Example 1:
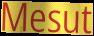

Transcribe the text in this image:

Mesut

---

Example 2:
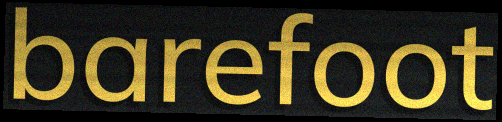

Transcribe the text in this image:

barefoot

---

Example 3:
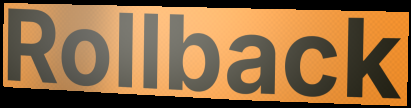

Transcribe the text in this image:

Rollback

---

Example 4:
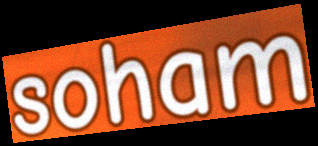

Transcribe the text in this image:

soham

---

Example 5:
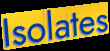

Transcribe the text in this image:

Isolates